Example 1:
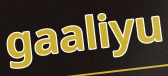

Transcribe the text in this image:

gaaliyu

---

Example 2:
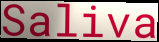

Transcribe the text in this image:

Saliva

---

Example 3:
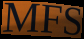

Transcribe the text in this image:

MFS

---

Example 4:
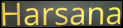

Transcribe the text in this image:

Harsana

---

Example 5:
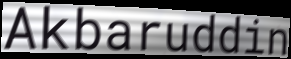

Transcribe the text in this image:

Akbaruddin